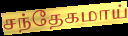
சந்தேகமாய்